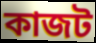
কাজট